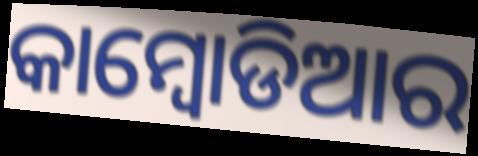
କାମ୍ବୋଡିଆର